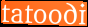
tatoodi